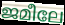
ജമീലേ